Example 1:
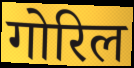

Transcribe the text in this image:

गोरिल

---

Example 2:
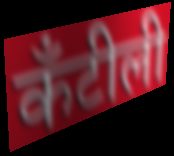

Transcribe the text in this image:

कँटीली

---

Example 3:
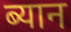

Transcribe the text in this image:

ब्यान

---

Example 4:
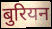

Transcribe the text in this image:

बुरियन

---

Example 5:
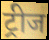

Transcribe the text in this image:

ट्रीज